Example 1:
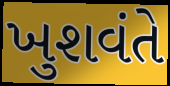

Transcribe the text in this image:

ખુશવંતે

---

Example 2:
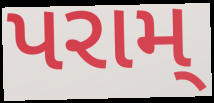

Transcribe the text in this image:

પરામ્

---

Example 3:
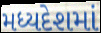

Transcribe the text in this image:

મધ્યદેશમાં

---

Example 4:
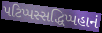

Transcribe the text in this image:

પટિપ્પસ્સદ્ધિપ્પહાનં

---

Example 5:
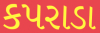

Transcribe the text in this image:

કપરાડા